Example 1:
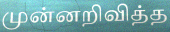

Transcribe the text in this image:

முன்னறிவித்த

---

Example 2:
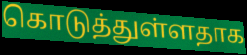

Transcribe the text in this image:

கொடுத்துள்ளதாக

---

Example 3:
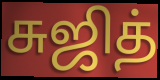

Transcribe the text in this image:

சுஜித்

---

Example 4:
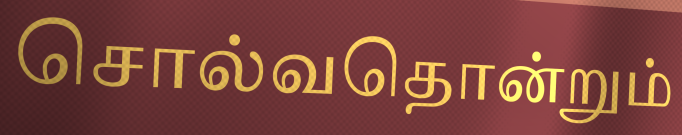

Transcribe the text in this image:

சொல்வதொன்றும்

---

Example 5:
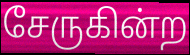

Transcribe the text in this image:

சேருகின்ற